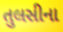
તુલસીના